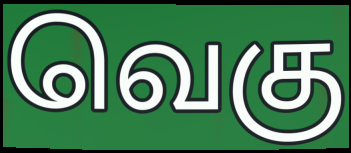
வெகு